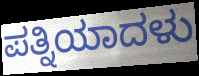
ಪತ್ನಿಯಾದಳು